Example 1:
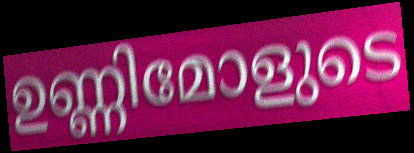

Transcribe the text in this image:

ഉണ്ണിമോളുടെ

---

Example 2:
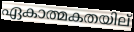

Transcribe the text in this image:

ഏകാത്മകതയില്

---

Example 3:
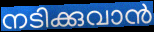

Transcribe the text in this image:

നടിക്കുവാൻ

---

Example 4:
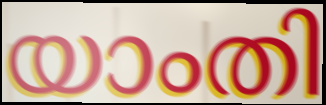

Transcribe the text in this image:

യാംതി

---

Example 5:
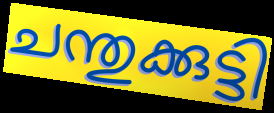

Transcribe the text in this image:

ചന്തുക്കുട്ടി